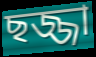
ছজ্জা